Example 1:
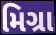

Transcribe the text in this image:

મિગ્રા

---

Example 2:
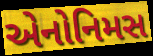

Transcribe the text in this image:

એનોનિમસ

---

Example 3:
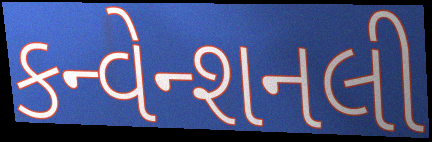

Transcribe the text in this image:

કન્વેન્શનલી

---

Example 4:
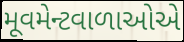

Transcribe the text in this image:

મૂવમેન્ટવાળાઓએ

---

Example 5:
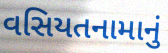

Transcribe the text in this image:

વસિયતનામાનું